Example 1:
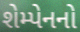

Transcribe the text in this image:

શેમ્પેનનો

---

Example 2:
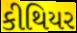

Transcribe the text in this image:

કીથિયર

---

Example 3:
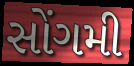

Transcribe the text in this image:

સોંગમી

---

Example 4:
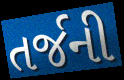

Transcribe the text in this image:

તર્જની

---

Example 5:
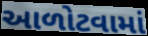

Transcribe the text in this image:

આળોટવામાં